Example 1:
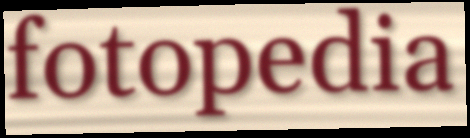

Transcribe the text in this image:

fotopedia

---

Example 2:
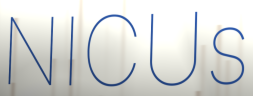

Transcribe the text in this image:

NICUs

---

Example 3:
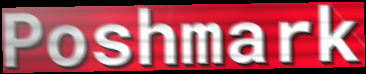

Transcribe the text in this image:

Poshmark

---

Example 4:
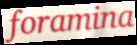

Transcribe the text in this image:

foramina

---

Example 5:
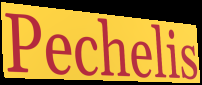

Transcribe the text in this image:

Pechelis